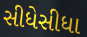
સીધેસીધા